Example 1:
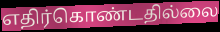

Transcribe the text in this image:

எதிர்கொண்டதில்லை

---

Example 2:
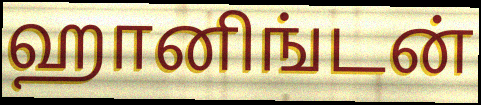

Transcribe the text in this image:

ஹானிங்டன்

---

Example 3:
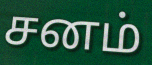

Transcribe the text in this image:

சனம்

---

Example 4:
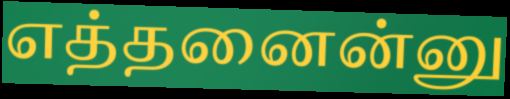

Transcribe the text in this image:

எத்தனைன்னு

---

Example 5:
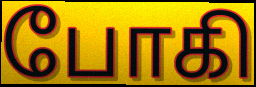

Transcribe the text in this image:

போகி